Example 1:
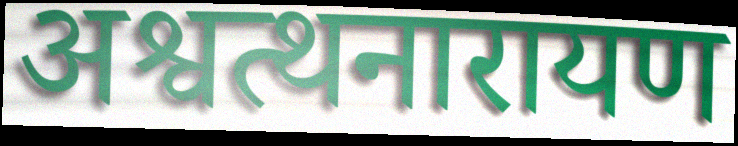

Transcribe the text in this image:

अश्वत्थनारायण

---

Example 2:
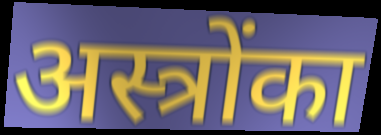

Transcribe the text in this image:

अस्त्रोंका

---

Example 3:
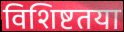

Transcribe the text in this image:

विशिष्टतया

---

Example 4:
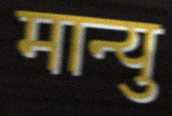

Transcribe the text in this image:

मान्यु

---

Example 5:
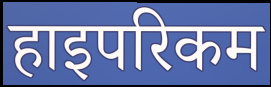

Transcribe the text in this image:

हाइपरिकम